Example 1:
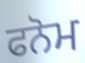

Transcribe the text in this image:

ਫਨੋਮ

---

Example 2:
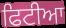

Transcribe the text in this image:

ਫਿਟੀਆ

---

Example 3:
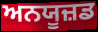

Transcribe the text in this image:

ਅਨਯੂਜ਼ਡ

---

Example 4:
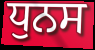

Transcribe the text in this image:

ਧੁਨਸ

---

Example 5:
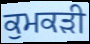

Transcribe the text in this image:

ਕੁਮਕੜੀ